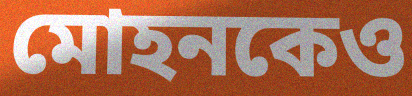
মোহনকেও